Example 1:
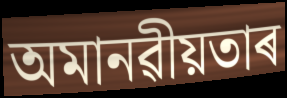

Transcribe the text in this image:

অমানৱীয়তাৰ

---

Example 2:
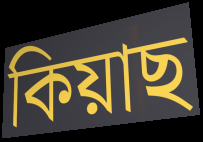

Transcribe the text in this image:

কিয়াছ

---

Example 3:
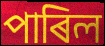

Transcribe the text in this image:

পাৰিল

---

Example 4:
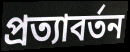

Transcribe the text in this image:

প্ৰত্যাবৰ্তন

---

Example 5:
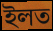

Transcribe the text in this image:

ইলত